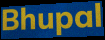
Bhupal